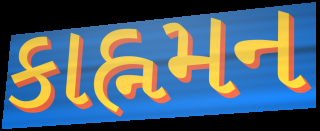
કાહ્નમન